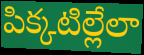
పిక్కటిల్లేలా